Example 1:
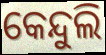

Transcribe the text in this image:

କେନ୍ଦୁଲି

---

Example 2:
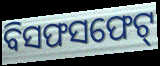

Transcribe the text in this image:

ବିସଫସଫେଟ୍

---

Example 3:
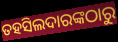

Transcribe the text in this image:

ତହସିଲଦାରଙ୍କଠାରୁ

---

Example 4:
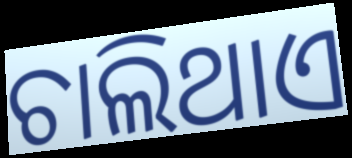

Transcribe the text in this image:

ଚାଲିଥାଏ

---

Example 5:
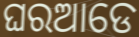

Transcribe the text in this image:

ଘରଆଡେ